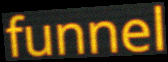
funnel